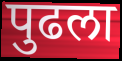
पुढला